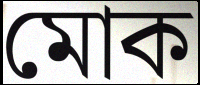
মোক